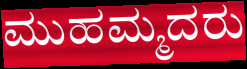
ಮುಹಮ್ಮದರು